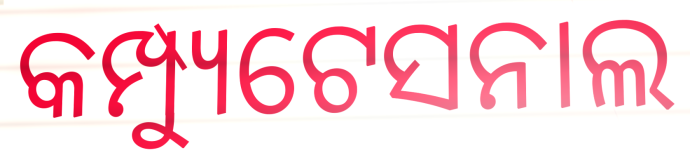
କମ୍ପ୍ୟୁଟେସନାଲ